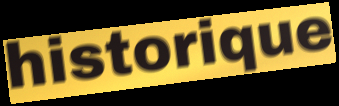
historique